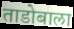
ताडोबाला